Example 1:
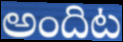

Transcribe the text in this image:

అందిట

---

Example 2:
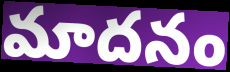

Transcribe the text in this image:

మాదనం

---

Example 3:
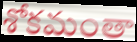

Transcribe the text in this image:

శోకమంతా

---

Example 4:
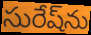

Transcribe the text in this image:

సురేష్‌ను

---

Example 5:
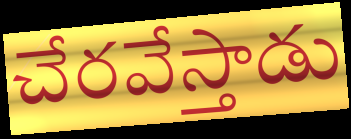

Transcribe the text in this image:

చేరవేస్తాడు